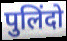
पुलिंदो